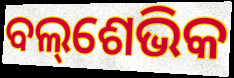
ବଲ୍‌ଶେଭିକ